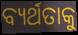
ବ୍ୟର୍ଥତାକୁ